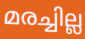
മരച്ചില്ല